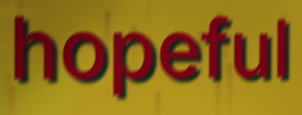
hopeful